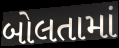
બોલતામાં